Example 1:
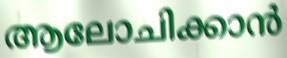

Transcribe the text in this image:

ആലോചിക്കാൻ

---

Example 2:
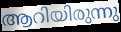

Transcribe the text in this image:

ആറിയിരുന്നു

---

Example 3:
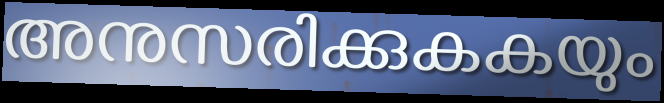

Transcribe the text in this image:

അനുസരിക്കുകകയും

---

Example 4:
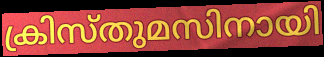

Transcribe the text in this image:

ക്രിസ്തുമസിനായി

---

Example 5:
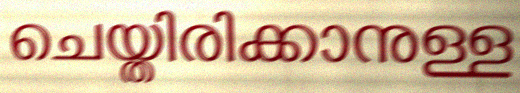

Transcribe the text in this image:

ചെയ്തിരിക്കാനുള്ള